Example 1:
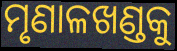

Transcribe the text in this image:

ମୃଣାଳଖଣ୍ଡକୁ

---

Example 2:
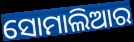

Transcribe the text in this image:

ସୋମାଲିଆର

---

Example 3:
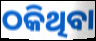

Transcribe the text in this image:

ଠକିଥିବା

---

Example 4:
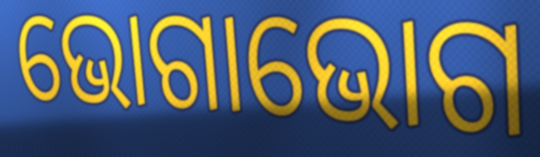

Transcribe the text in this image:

ଭୋଗାଭୋଗ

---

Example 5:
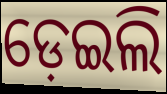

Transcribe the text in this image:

ଡ଼େଇଲି